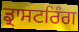
ਡ੍ਰਾਸਟਰਿੰਗ